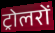
ट्रोलरों